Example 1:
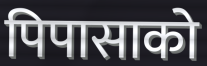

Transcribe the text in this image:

पिपासाको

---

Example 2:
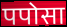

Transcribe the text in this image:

पपोसा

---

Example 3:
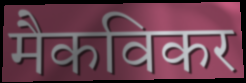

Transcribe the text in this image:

मैकविकर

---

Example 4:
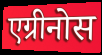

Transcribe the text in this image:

एग्रीनोस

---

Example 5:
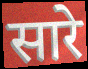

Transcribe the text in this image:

सारे